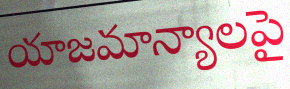
యాజమాన్యాలపై